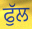
ਫੁੱਲ